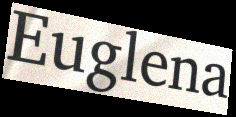
Euglena